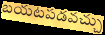
బయటపడవచ్చు